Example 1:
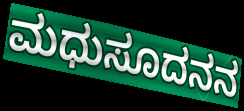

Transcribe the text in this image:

ಮಧುಸೂದನನ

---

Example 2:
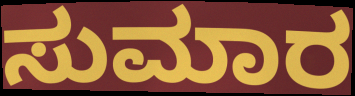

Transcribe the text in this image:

ಸುಮಾರ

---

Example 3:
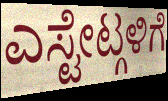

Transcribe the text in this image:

ಎಸ್ಟೇಟ್ಗಳಿಗೆ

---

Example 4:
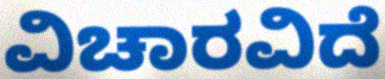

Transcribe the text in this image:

ವಿಚಾರವಿದೆ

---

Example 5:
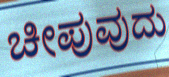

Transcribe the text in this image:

ಚೀಪುವುದು